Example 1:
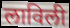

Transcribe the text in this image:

लाविली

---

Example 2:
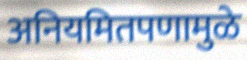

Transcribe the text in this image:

अनियमितपणामुळे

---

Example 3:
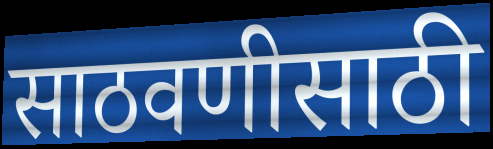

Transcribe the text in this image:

साठवणीसाठी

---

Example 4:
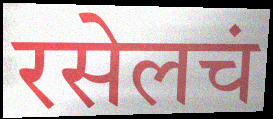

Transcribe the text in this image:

रसेलचं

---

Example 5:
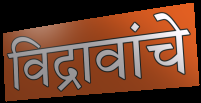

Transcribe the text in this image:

विद्रावांचे